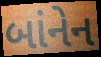
બાંનેન